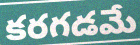
కరగడమే